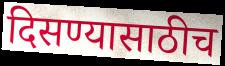
दिसण्यासाठीच